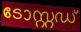
ടോസ്റ്റഡ്